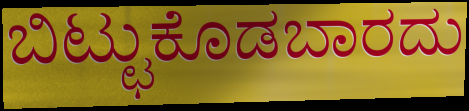
ಬಿಟ್ಟುಕೊಡಬಾರದು